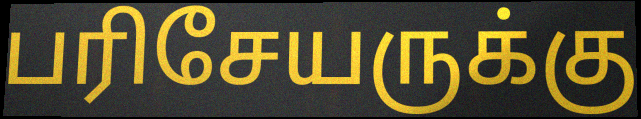
பரிசேயருக்கு